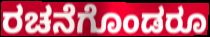
ರಚನೆಗೊಂಡರೂ